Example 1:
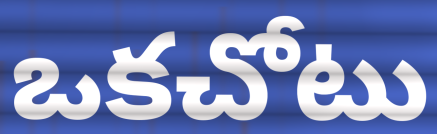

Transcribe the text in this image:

ఒకచోటు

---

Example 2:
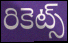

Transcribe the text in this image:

రికెట్స్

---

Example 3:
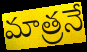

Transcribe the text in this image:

మాత్రనే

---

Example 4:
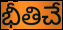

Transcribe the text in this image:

భీతిచే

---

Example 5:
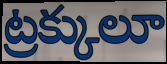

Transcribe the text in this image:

ట్రక్కులూ